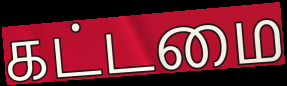
கட்டமை